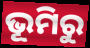
ଭୂମିରୁ